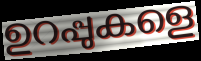
ഉറപ്പുകളെ